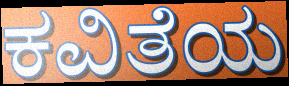
ಕವಿತೆಯ